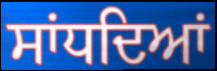
ਸਾਂਧਦਿਆਂ